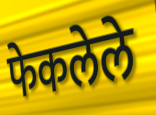
फेकलेले